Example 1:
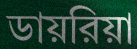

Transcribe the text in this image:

ডায়রিয়া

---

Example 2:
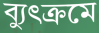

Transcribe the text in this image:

ব্যুৎক্রমে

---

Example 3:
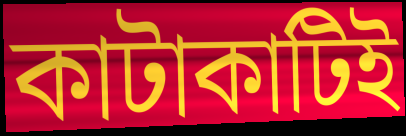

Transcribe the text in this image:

কাটাকাটিই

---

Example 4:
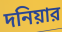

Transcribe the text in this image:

দনিয়ার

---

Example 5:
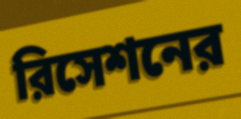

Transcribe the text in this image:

রিসেশনের